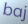
baj